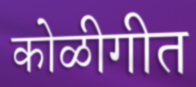
कोळीगीत